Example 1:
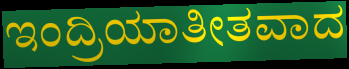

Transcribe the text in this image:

ಇಂದ್ರಿಯಾತೀತವಾದ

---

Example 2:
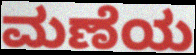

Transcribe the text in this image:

ಮಣೆಯ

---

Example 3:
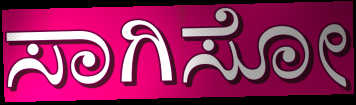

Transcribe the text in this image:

ಸಾಗಿಸೋ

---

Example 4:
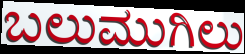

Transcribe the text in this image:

ಬಲುಮುಗಿಲು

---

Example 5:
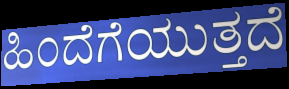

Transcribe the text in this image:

ಹಿಂದೆಗೆಯುತ್ತದೆ